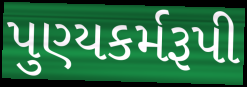
પુણ્યકર્મરૂપી